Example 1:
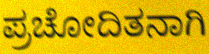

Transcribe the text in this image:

ಪ್ರಚೋದಿತನಾಗಿ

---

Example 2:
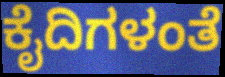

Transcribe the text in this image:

ಕೈದಿಗಳಂತೆ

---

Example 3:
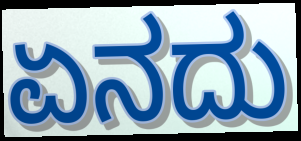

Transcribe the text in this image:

ಏನದು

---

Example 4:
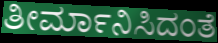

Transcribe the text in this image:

ತೀರ್ಮಾನಿಸಿದಂತೆ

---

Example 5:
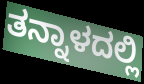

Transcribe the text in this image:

ತನ್ನಾಳದಲ್ಲಿ